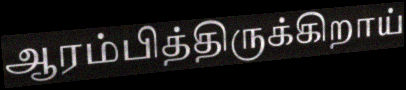
ஆரம்பித்திருக்கிறாய்